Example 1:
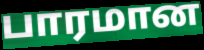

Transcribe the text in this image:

பாரமான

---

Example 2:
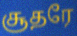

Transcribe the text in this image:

சூதரே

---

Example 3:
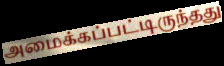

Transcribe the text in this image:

அமைக்கப்பட்டிருந்தது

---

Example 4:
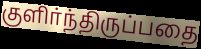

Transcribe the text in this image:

குளிர்ந்திருப்பதை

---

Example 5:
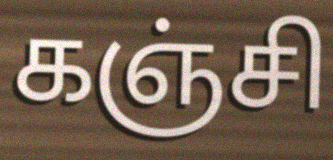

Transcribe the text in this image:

கஞ்சி